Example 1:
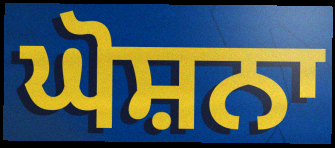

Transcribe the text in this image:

ਘੋਸ਼ਨਾ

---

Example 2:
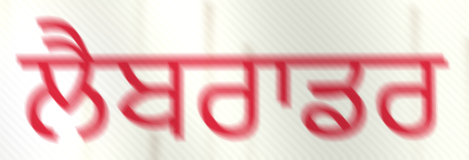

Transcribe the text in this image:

ਲੈਬਰਾਡਰ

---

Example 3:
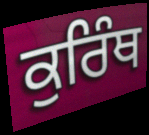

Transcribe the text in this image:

ਕੁਰਿੰਥ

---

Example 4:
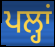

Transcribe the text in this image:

ਪਲ੍ਹਾਂ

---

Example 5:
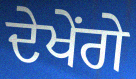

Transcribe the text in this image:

ਦੇਖੇਂਗੇ